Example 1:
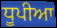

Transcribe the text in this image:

ਧੂਪੀਆ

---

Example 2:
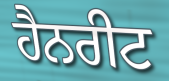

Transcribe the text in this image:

ਹੈਨਰੀਟ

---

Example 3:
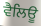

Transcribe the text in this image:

ਵੈਲਿਊ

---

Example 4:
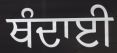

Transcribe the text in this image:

ਥੰਦਾਈ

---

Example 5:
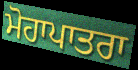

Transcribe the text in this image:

ਮੋਹਾਪਾਤਰਾ